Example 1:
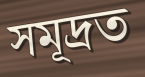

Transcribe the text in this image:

সমূদ্ৰত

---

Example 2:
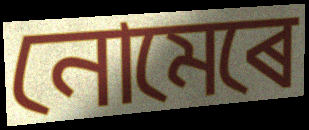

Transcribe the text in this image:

নোমেৰে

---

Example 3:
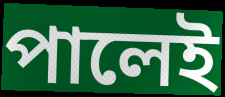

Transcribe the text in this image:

পালেই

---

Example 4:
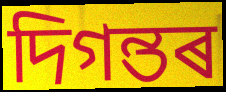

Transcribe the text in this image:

দিগন্তৰ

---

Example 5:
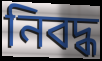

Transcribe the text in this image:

নিবদ্ধ